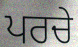
ਪਰਚੇ